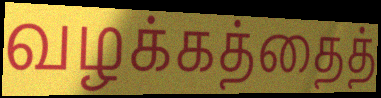
வழக்கத்தைத்